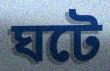
ঘটে